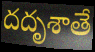
దదృశాతే